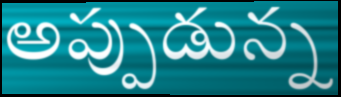
అప్పుడున్న